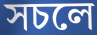
সচলে